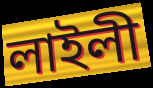
লাইলী